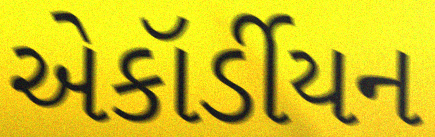
એકૉર્ડીયન